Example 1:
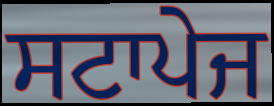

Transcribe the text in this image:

ਸਟਾਪੇਜ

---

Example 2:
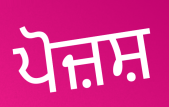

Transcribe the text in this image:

ਪੋਜ਼ਸ਼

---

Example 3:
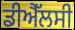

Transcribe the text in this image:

ਡੀਐੱਲਸੀ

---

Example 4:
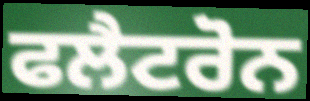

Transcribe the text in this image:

ਫਲੈਟਰੋਨ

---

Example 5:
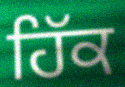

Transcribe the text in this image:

ਹਿੱਕ